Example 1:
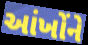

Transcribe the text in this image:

આંખોંને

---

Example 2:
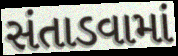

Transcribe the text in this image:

સંતાડવામાં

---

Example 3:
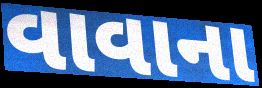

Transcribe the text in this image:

વાવાના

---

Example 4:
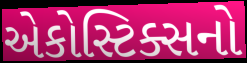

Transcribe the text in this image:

એકોસ્ટિક્સનો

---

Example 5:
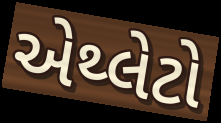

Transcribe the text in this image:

એથ્લેટો